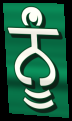
ਨੂਂੰ